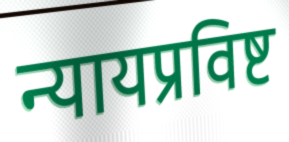
न्यायप्रविष्ट